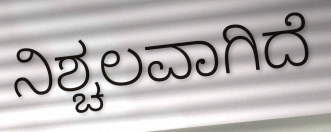
ನಿಶ್ಚಲವಾಗಿದೆ